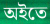
অইতে